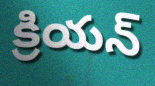
క్రియన్